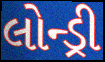
લોન્ડ્રી